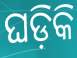
ଘଡ଼ିକି